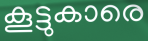
കൂട്ടുകാരെ